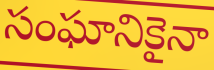
సంఘానికైనా